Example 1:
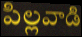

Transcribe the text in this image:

పిల్లవాడి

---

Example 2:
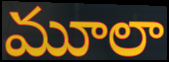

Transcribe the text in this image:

మూలా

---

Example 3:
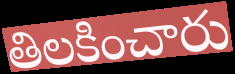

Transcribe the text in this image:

తిలకించారు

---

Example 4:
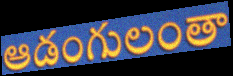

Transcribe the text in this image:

ఆడంగులంతా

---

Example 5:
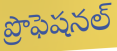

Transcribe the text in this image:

ప్రొఫెషనల్